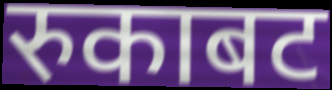
रुकाबट